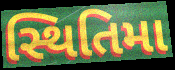
સ્થિતિમા